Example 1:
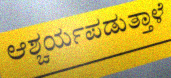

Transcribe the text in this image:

ಆಶ್ಚರ್ಯಪಡುತ್ತಾಳೆ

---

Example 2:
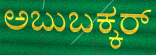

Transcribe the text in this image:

ಅಬುಬಕ್ಕರ್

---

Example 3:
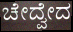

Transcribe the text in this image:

ಚೇದ್ವೇದ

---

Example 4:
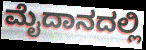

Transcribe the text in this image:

ಮೈದಾನದಲ್ಲಿ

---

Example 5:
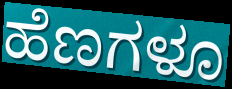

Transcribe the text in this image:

ಹೆಣಗಳೂ